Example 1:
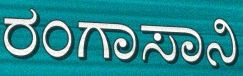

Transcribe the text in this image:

ರಂಗಾಸಾನಿ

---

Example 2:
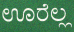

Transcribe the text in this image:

ಊರೆಲ್ಲ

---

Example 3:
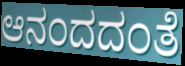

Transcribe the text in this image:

ಆನಂದದಂತೆ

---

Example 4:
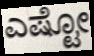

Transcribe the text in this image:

ಎಷ್ಟೋ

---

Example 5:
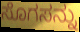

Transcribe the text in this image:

ಸೊಗಸನ್ನು